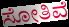
ಸೋತಿವೆ